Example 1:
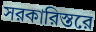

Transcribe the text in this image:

সরকারিস্তরে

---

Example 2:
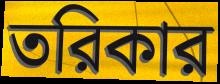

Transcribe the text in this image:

তরিকার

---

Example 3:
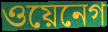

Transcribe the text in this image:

ওয়েনেগ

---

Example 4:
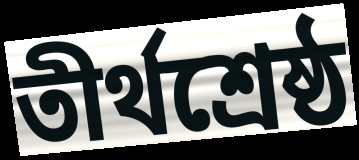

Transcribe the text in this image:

তীর্থশ্রেষ্ঠ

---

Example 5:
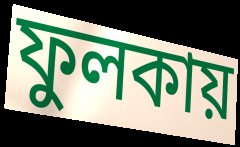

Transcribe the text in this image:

ফুলকায়